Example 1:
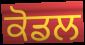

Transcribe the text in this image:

ਕੋਡਲ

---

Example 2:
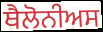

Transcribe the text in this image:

ਥੈਲੋਨੀਅਸ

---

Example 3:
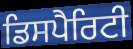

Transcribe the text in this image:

ਡਿਸਪੈਰਿਟੀ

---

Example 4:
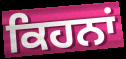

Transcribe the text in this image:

ਕਿਹਨਾਂ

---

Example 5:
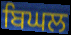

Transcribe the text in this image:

ਬਿਘਲ